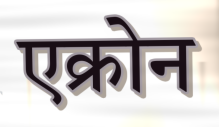
एक्रोन